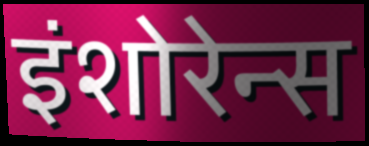
इंशोरेन्स